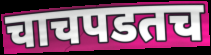
चाचपडतच